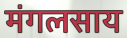
मंगलसाय